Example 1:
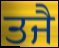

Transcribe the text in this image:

ਤਜੈ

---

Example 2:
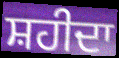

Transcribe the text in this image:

ਸ਼ਹੀਦਾ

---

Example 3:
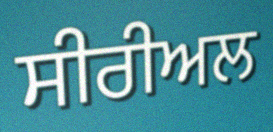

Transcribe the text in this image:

ਸੀਰੀਅਲ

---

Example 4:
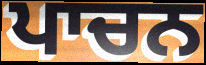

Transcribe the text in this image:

ਪਾਚਨ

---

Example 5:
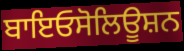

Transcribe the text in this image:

ਬਾਇਓਸੋਲਿਊਸ਼ਨ